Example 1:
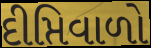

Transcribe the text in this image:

દીપ્તિવાળો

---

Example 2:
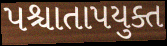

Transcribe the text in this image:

પશ્ચાતાપયુક્ત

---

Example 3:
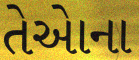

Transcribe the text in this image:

તેએાના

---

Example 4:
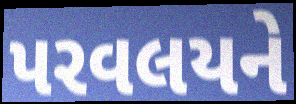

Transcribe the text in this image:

પરવલયને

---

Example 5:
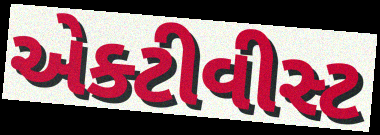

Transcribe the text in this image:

એક્ટીવીસ્ટ